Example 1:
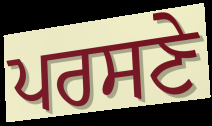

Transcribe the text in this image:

ਪਰਸਣੇ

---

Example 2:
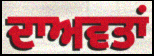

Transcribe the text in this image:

ਦਾਅਵਤਾਂ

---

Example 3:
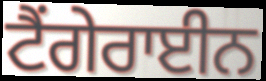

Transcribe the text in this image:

ਟੈਂਗੇਰਾਈਨ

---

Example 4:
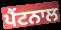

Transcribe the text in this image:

ਪੈਂਟਨਾਲ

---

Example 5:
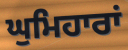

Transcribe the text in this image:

ਘੁਮਿਹਾਰਾਂ